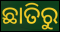
ଛାତିରୁ